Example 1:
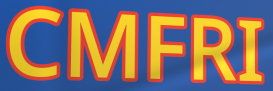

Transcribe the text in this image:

CMFRI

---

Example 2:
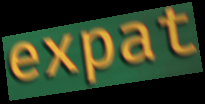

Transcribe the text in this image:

expat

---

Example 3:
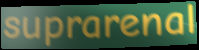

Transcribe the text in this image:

suprarenal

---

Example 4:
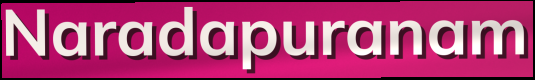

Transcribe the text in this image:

Naradapuranam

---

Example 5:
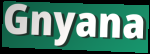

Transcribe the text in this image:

Gnyana